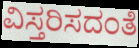
ವಿಸ್ತರಿಸದಂತೆ